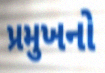
પ્રમુખનો